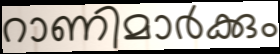
റാണിമാർക്കും